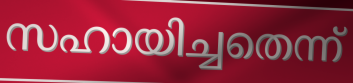
സഹായിച്ചതെന്ന്